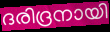
ദരിദ്രനായി